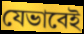
যেভাবেই